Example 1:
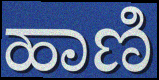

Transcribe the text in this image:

ಹಾಣಿ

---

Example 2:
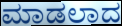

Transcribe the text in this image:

ಮಾಡಲಾದ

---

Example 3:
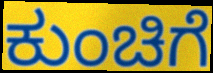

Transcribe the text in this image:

ಕುಂಚಿಗೆ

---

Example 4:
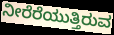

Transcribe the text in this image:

ನೀರೆರೆಯುತ್ತಿರುವ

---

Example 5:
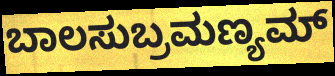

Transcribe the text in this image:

ಬಾಲಸುಬ್ರಮಣ್ಯಮ್